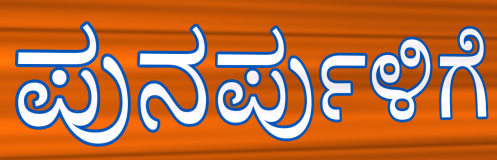
ಪುನರ್ಪುಳಿಗೆ